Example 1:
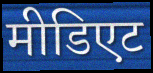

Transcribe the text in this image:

मीडिएट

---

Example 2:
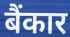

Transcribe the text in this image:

बैंकार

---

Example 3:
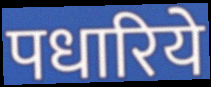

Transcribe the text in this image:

पधारिये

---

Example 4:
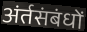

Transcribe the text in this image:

अंर्तसंबंधों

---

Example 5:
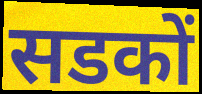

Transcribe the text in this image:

सडकों